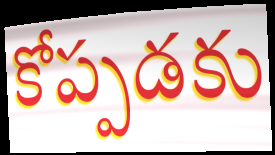
కోప్పడకు